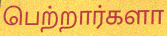
பெற்றார்களா